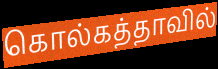
கொல்கத்தாவில்